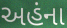
અહંના